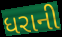
ધરાની